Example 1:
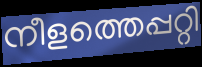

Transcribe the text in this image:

നീളത്തെപ്പറ്റി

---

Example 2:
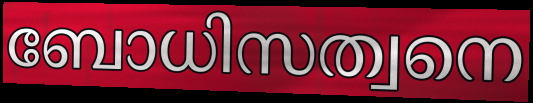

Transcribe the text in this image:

ബോധിസത്വനെ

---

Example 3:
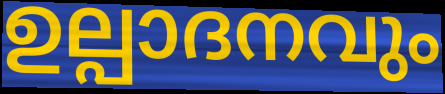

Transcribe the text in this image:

ഉല്പാദനവും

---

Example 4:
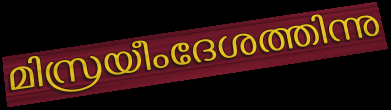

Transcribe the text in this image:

മിസ്രയീംദേശത്തിന്നു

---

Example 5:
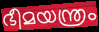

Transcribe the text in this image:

ഭീമയന്ത്രം